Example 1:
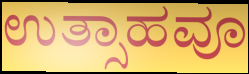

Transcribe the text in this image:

ಉತ್ಸಾಹವೂ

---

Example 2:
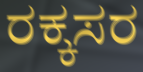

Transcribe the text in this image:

ರಕ್ಕಸರ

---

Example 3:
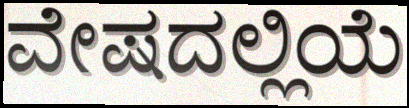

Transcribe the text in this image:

ವೇಷದಲ್ಲಿಯೆ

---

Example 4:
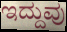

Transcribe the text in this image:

ಇದ್ದುವು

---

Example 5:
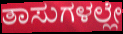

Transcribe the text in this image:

ತಾಸುಗಳಲ್ಲೇ